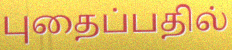
புதைப்பதில்